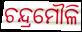
ଚନ୍ଦ୍ରମୌଳି